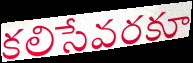
కలిసేవరకూ